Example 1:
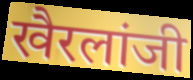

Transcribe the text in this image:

खैरलांजी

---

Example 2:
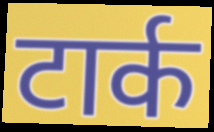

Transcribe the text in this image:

टार्क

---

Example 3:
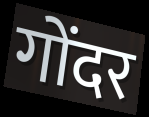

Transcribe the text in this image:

गोंदर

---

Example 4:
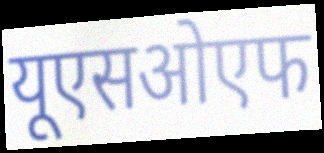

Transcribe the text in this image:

यूएसओएफ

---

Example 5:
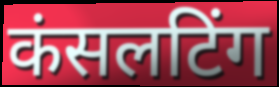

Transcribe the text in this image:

कंसलटिंग